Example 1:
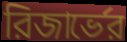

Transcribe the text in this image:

রিজার্ভের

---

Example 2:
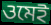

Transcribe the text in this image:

ওমেই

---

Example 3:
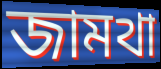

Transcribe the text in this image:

জামথা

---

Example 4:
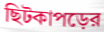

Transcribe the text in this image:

ছিটকাপড়ের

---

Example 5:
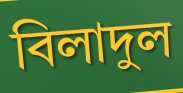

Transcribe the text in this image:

বিলাদুল